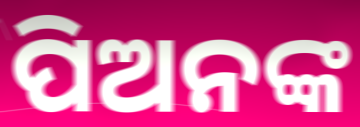
ପିଅନଙ୍କ